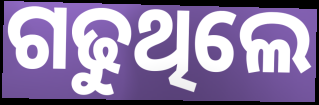
ଗଢୁଥିଲେ